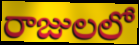
రాజులలో